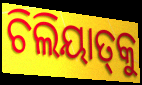
ଚିଲିୟାତ୍‍କୁ